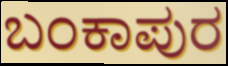
ಬಂಕಾಪುರ